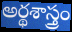
అర్థశాస్త్రం